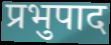
प्रभुपाद